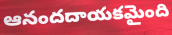
ఆనందదాయకమైంది